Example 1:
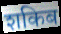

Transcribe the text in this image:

शकिब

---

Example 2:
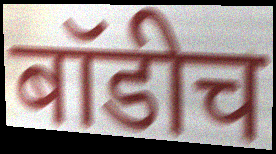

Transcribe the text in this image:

बॉडीच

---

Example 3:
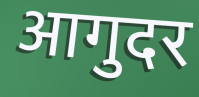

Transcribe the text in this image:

आगुदर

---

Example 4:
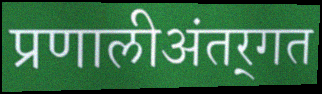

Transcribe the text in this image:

प्रणालीअंतर्गत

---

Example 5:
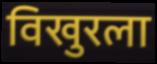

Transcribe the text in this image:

विखुरला